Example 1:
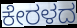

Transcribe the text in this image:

ಕೇರಳದ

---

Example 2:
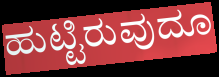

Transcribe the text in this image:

ಹುಟ್ಟಿರುವುದೂ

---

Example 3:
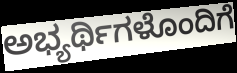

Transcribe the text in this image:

ಅಭ್ಯರ್ಥಿಗಳೊಂದಿಗೆ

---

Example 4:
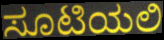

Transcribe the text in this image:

ಸೂಟಿಯಲಿ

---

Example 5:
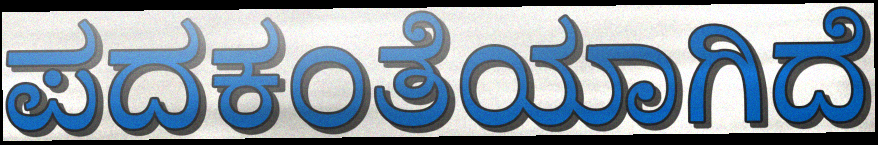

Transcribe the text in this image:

ಪದಕಂತೆಯಾಗಿದೆ